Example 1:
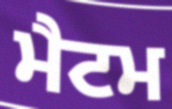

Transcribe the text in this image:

ਮੈਟਮ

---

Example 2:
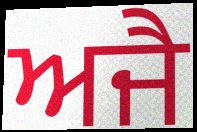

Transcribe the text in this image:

ਅਜੈ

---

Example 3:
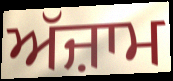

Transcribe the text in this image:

ਅੱਜ਼ਾਮ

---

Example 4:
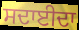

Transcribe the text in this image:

ਸਦਾਈਦਾ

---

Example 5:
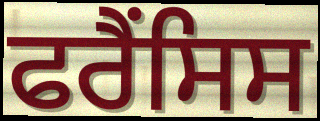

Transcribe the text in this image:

ਫਰੈਂਸਿਸ